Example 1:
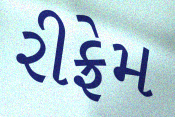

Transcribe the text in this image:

રીફ્રેમ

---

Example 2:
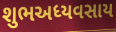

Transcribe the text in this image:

શુભઅધ્યવસાય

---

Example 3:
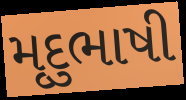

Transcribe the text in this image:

મૃદુભાષી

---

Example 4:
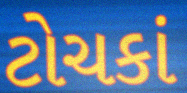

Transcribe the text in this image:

ટોચકાં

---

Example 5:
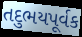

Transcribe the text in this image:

તદુભયપૂર્વક